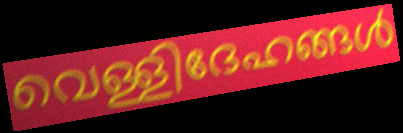
വെള്ളിദേഹങ്ങൾ